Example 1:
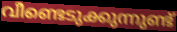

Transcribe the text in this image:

വീണ്ടെടുക്കുന്നുണ്ട്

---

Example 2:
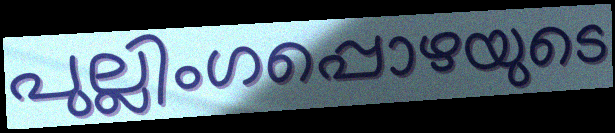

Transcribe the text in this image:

പുല്ലിംഗപ്പൊഴയുടെ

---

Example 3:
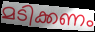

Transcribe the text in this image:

മടിക്കണം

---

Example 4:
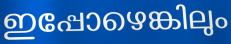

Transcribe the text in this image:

ഇപ്പോഴെങ്കിലും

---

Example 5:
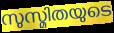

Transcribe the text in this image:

സുസ്മിതയുടെ